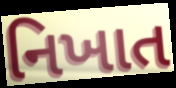
નિખાત